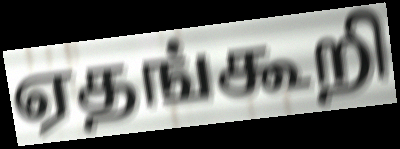
ஏதங்கூறி